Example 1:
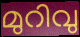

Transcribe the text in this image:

മുറിവു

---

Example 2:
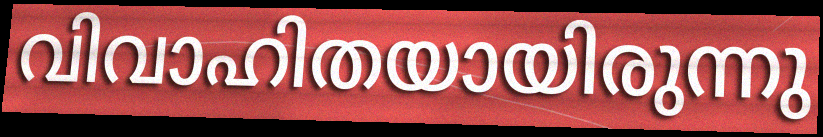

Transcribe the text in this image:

വിവാഹിതയായിരുന്നു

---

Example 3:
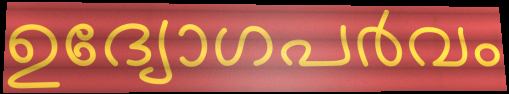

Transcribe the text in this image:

ഉദ്യോഗപർവം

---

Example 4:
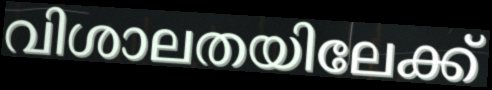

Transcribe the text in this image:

വിശാലതയിലേക്ക്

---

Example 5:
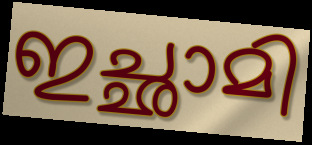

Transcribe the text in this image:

ഇച്ഛാമി